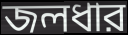
জলধার